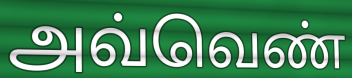
அவ்வெண்